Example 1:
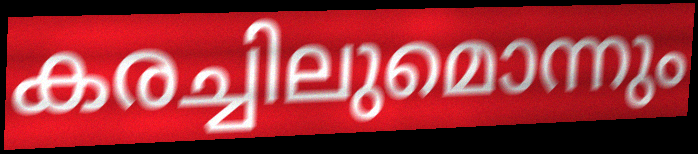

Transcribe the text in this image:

കരച്ചിലുമൊന്നും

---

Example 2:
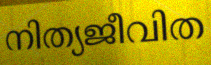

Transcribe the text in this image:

നിത്യജീവിത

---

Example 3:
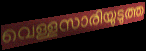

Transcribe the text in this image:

വെള്ളസാരിയുടുത്ത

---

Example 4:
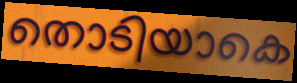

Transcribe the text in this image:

തൊടിയാകെ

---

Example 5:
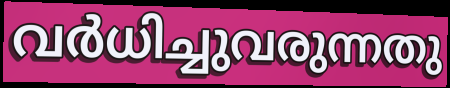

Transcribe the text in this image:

വർധിച്ചുവരുന്നതു